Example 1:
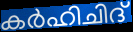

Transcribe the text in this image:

കർഹിചിദ്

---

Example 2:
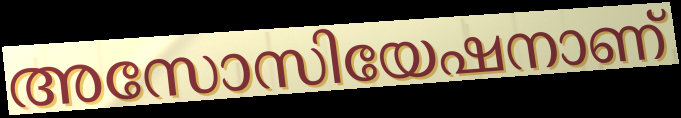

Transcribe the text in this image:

അസോസിയേഷനാണ്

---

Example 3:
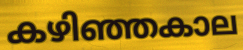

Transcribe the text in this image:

കഴിഞ്ഞകാല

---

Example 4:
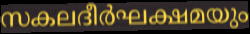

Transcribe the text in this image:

സകലദീർഘക്ഷമയും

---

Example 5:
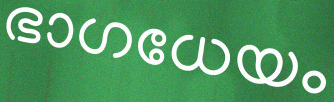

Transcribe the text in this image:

ഭാഗധേയം